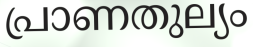
പ്രാണതുല്യം